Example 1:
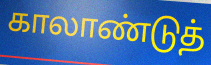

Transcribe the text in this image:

காலாண்டுத்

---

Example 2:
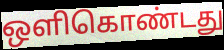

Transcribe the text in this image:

ஒளிகொண்டது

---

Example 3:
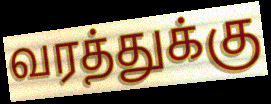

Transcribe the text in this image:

வரத்துக்கு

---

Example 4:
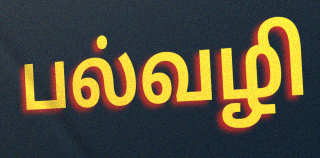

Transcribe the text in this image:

பல்வழி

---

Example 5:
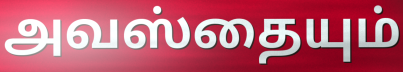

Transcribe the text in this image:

அவஸ்தையும்